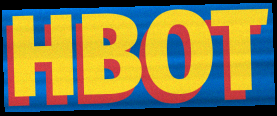
HBOT